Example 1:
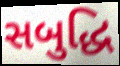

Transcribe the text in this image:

સબુદ્ધિ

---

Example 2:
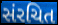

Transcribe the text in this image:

સંરચિત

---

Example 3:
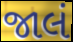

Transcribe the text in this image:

જાલં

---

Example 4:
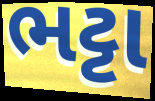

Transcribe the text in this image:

ભટ્ટા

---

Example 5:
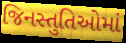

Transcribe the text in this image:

જિનસ્તુતિઓમાં